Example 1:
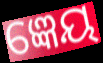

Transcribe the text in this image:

ଜ୍ଞେୟ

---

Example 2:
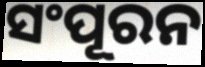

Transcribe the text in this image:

ସଂପୂରନ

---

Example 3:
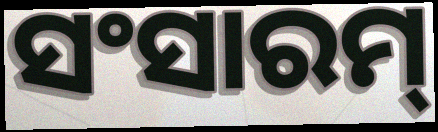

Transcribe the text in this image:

ସଂସାରମ୍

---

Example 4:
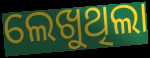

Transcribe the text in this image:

ଲେଖୁଥିଲା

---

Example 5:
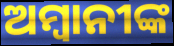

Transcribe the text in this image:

ଅମ୍ବାନୀଙ୍କ